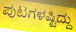
ಪುಟಗಳಷ್ಟಿದ್ದು